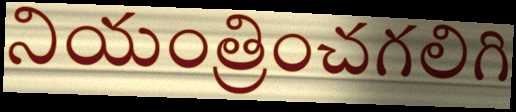
నియంత్రించగలిగి